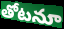
తోటనూ